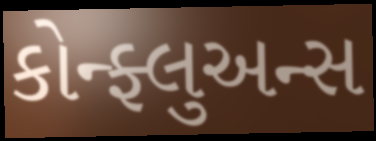
કોન્ફ્લુઅન્સ